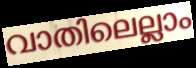
വാതിലെല്ലാം